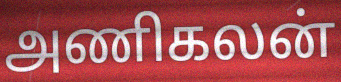
அணிகலன்